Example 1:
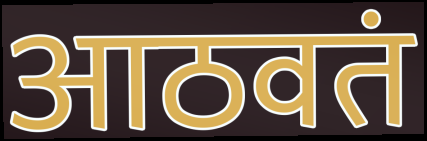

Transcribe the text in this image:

आठवतं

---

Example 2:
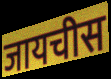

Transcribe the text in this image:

जायचीस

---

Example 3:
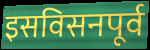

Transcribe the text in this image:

इसविसनपूर्व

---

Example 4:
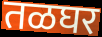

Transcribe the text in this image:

तळघर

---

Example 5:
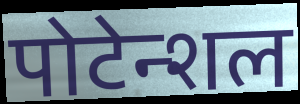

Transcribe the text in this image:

पोटेन्शल